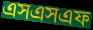
এসএসএফ